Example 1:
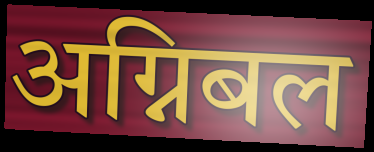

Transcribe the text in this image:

अग्निबल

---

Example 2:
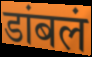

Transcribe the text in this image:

डांबलं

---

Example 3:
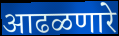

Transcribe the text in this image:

आढळणारे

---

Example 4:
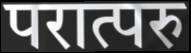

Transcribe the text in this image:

परात्परु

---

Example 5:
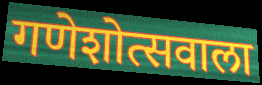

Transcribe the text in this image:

गणेशोत्सवाला